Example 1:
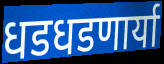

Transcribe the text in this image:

धडधडणार्या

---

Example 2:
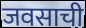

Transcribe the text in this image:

जवसाची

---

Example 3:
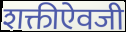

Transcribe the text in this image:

शक्तीऐवजी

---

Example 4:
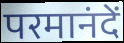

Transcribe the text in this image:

परमानंदें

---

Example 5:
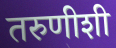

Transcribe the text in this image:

तरुणीशी